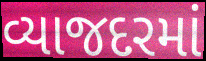
વ્યાજદરમાં